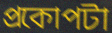
প্রকোপটা